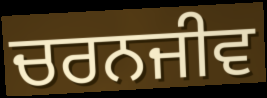
ਚਰਨਜੀਵ